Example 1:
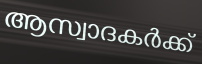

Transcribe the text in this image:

ആസ്വാദകർക്ക്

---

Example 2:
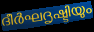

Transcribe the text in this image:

ദീർഘദൃഷ്ടിയും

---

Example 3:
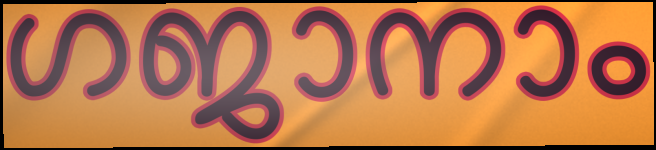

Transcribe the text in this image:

ഗജാനാം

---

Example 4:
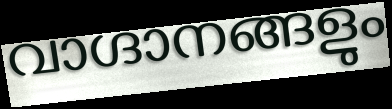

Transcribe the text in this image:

വാഗ്ദാനങ്ങളും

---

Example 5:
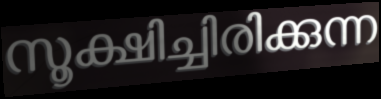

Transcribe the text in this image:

സൂക്ഷിച്ചിരിക്കുന്ന